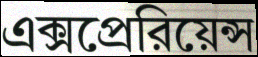
এক্সপ্রেরিয়েন্স